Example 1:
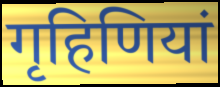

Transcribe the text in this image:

गृहिणियां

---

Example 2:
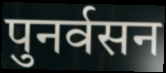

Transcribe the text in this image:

पुनर्वसन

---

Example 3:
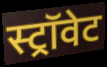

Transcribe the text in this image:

स्ट्रॉवेट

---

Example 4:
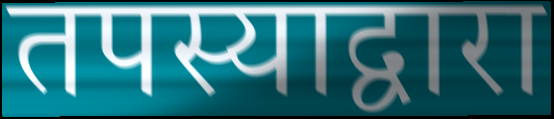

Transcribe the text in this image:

तपस्याद्वारा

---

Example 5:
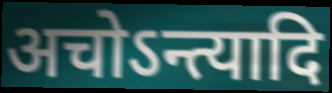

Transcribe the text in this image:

अचोऽन्त्यादि